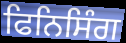
ਫਿਨਿਸਿੰਗ